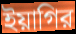
ইয়াগির